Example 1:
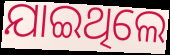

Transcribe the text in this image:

ଯାଇଥିଲେ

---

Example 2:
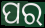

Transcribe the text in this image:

ପର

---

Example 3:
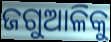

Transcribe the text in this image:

ଜଗୁଆଳିକୁ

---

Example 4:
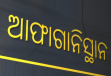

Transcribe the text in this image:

ଆଫାଗାନିସ୍ଥାନ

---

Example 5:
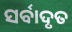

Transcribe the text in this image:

ସର୍ବାଦୃତ